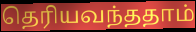
தெரியவந்ததாம்